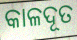
କାଳଦୂତ